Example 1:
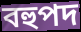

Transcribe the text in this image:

বহুপদ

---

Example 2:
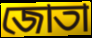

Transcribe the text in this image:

জোতা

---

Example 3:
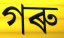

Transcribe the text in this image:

গৰু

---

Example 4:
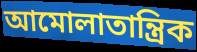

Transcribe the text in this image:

আমোলাতান্ত্ৰিক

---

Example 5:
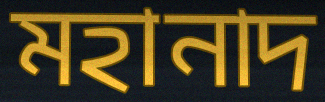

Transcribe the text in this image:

মহানাদ